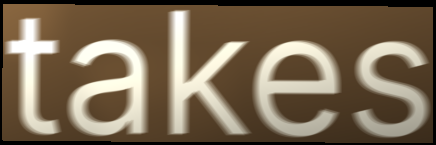
takes